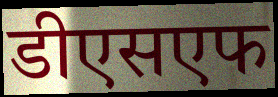
डीएसएफ